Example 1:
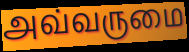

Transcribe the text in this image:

அவ்வருமை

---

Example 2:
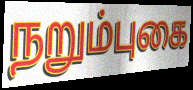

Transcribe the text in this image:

நறும்புகை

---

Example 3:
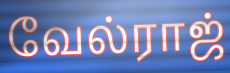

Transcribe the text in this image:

வேல்ராஜ்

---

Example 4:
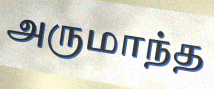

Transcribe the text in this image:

அருமாந்த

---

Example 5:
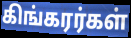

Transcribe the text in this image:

கிங்கரர்கள்